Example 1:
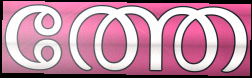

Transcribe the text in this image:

ത്തേ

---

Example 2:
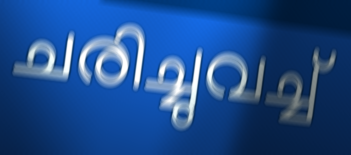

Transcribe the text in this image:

ചരിച്ചുവച്ച്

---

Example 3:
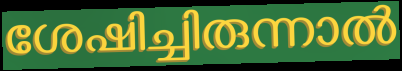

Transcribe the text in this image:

ശേഷിച്ചിരുന്നാൽ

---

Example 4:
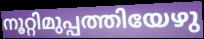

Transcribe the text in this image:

നൂറ്റിമുപ്പത്തിയേഴു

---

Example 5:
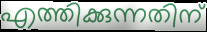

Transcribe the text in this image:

എത്തിക്കുന്നതിന്